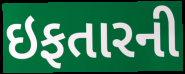
ઇફતારની